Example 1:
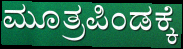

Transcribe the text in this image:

ಮೂತ್ರಪಿಂಡಕ್ಕೆ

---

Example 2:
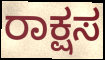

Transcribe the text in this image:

ರಾಕ್ಷಸ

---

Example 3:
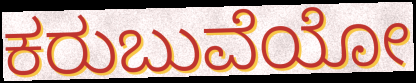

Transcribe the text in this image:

ಕರುಬುವೆಯೋ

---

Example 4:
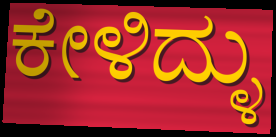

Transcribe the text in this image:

ಕೇಳಿದ್ಳು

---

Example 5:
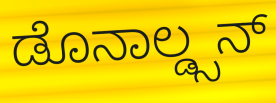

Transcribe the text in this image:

ಡೊನಾಲ್ಡ್ಸನ್